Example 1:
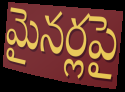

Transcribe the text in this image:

మైనర్లపై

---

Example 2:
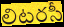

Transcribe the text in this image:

లిటరసీ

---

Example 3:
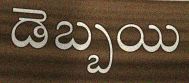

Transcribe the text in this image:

డెబ్బయి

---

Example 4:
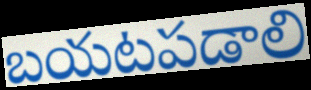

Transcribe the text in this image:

బయటపడాలి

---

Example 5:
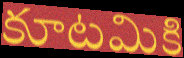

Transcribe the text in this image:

కూటమికి